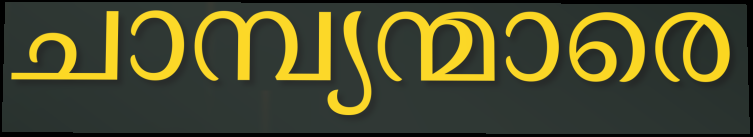
ചാമ്പ്യന്മാരെ